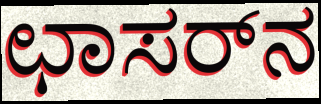
ಛಾಸರ್‌ನ